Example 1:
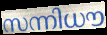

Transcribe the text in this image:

സന്നിധൗ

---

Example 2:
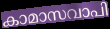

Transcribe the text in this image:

കാമാസവാപി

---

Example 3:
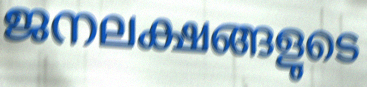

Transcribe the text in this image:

ജനലക്ഷങ്ങളുടെ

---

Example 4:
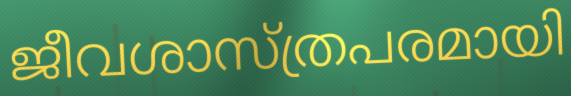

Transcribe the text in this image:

ജീവശാസ്ത്രപരമായി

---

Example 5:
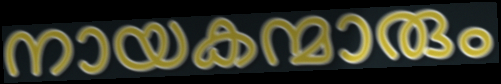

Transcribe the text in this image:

നായകന്മാരും